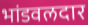
भांडवलदार